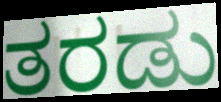
ತರಡು